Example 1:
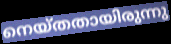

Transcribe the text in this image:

നെയ്തതായിരുന്നു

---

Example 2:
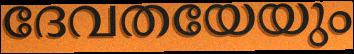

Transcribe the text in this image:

ദേവതയേയും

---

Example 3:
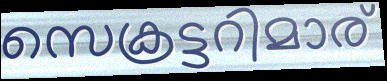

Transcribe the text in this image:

സെക്രട്ടറിമാര്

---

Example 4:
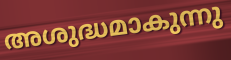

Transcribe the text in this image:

അശുദ്ധമാകുന്നു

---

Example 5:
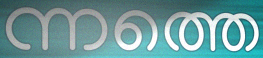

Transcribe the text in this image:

ന്നത്തെ